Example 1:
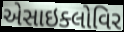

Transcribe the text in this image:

એસાઇક્લોવિર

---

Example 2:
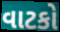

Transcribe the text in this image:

વાટકો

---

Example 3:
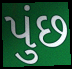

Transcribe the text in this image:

પુંછ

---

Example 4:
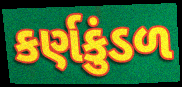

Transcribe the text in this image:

કર્ણકુંડળ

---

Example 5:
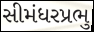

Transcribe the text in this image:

સીમંધરપ્રભુ